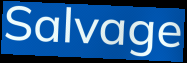
Salvage